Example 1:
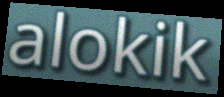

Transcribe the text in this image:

alokik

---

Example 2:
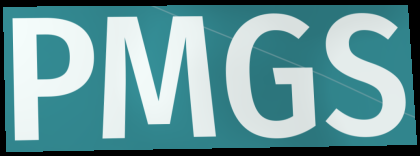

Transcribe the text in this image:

PMGS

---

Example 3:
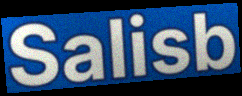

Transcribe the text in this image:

Salisb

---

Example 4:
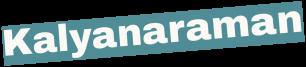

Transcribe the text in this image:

Kalyanaraman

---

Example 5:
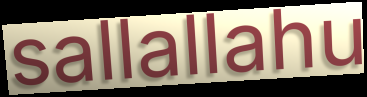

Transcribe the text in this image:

sallallahu